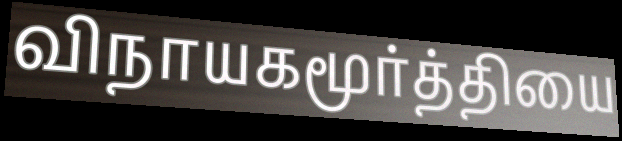
விநாயகமூர்த்தியை